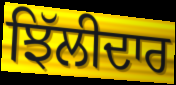
ਝਿੱਲੀਦਾਰ